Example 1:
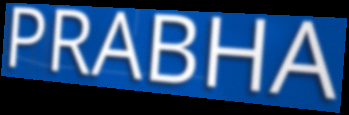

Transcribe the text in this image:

PRABHA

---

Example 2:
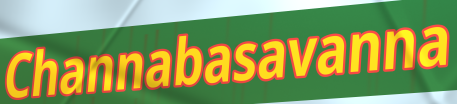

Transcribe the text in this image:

Channabasavanna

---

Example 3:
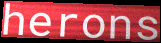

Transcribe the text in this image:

herons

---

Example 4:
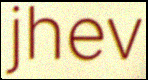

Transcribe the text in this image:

jhev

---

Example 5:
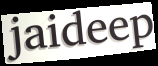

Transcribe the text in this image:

jaideep